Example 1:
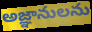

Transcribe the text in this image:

అజ్ఞానులను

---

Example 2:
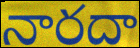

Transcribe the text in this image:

నారదా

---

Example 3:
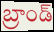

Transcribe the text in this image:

బ్రాండ్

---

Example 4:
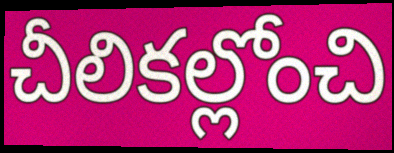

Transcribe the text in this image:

చీలికల్లోంచి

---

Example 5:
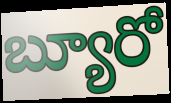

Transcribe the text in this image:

బ్యూరో